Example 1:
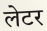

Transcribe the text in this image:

लेटर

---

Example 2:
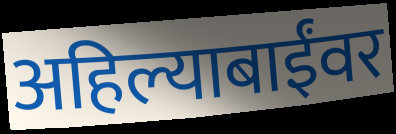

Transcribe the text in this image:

अहिल्याबाईंवर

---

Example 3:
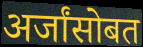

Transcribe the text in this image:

अर्जांसोबत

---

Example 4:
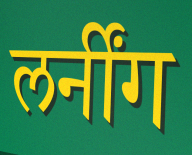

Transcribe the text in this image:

लर्नींग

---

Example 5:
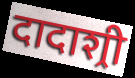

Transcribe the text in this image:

दादाश्री